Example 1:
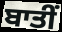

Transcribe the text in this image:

ਬਾਤੀਂ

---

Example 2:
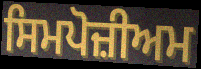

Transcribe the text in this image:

ਸਿਮਪੋਜ਼ੀਅਮ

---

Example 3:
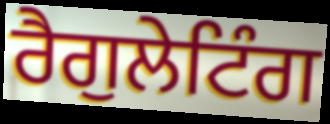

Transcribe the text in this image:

ਰੈਗੁਲੇਟਿੰਗ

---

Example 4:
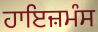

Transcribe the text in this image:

ਹਾਇਜ਼ਮੰਸ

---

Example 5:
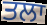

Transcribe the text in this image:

ਤਲਾ